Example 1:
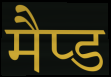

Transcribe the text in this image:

मैप्ड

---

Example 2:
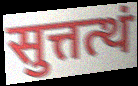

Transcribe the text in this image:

सुत्तत्थं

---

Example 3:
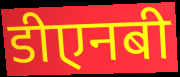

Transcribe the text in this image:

डीएनबी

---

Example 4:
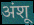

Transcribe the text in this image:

अंशू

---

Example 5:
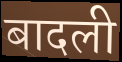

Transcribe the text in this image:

बादली